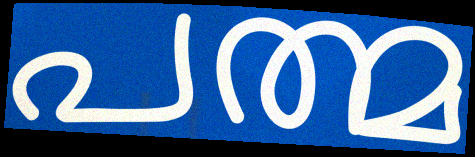
പത്മ